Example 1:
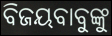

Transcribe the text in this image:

ବିଜୟବାବୁଙ୍କୁ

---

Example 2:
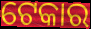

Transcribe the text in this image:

ଟେକାର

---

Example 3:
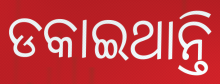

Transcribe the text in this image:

ଡକାଇଥାନ୍ତି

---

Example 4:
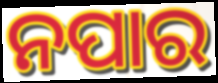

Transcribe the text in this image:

ନପାର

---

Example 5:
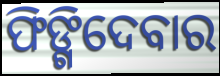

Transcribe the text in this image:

ଫିଙ୍ଗିଦେବାର